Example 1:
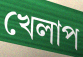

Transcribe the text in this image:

খেলাপ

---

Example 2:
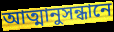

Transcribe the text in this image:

আত্মানুসন্ধানে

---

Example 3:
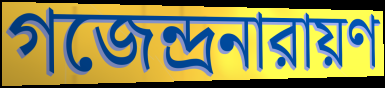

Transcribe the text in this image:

গজেন্দ্রনারায়ণ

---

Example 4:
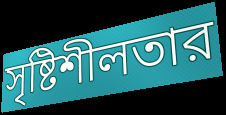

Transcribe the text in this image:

সৃষ্টিশীলতার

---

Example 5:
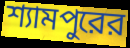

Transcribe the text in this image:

শ্যামপুরের